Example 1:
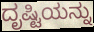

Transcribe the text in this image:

ದೃಷ್ಟಿಯನ್ನು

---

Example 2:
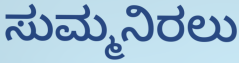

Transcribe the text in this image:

ಸುಮ್ಮನಿರಲು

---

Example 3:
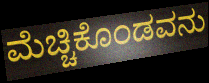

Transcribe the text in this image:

ಮೆಚ್ಚಿಕೊಂಡವನು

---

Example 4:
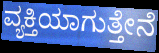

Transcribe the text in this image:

ವ್ಯಕ್ತಿಯಾಗುತ್ತೇನೆ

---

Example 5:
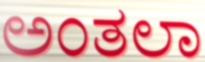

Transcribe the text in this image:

ಅಂತಲಾ